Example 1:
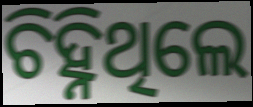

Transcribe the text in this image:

ଚିହ୍ନିଥିଲେ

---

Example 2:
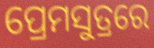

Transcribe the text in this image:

ପ୍ରେମସୁତ୍ରରେ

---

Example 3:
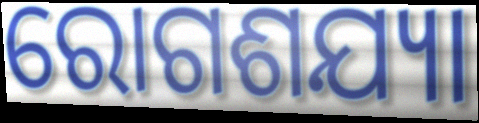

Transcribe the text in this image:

ରୋଗଶଯ୍ୟା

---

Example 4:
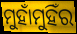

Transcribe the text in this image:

ମୁହାଁମୁହିଁର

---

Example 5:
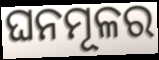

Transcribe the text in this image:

ଘନମୂଳର